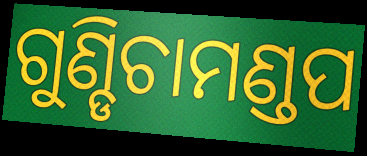
ଗୁଣ୍ଡିଚାମଣ୍ଡପ